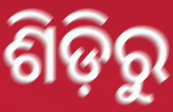
ଶିଡ଼ିରୁ